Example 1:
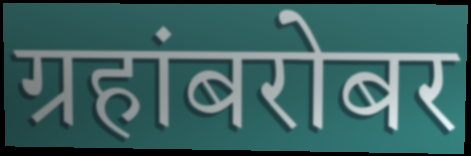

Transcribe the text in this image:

ग्रहांबरोबर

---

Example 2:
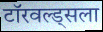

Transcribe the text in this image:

टॉरवल्ड्सला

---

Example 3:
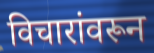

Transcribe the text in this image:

विचारांवरून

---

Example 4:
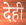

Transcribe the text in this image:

देही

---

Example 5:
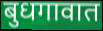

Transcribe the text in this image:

बुधगावात